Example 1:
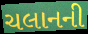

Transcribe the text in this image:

ચલાનની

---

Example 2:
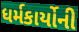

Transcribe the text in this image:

ધર્મકાર્યોની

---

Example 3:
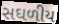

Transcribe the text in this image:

સઘળીય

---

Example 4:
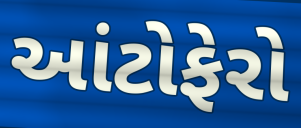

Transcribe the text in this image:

આંટોફેરો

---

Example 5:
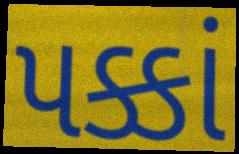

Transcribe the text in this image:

પક્કાં